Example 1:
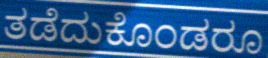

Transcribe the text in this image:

ತಡೆದುಕೊಂಡರೂ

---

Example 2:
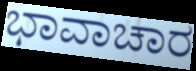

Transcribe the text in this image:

ಭಾವಾಚಾರ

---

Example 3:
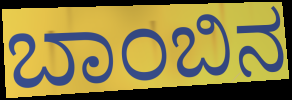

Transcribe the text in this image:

ಬಾಂಬಿನ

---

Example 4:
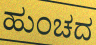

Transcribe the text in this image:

ಹುಂಚದ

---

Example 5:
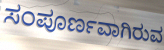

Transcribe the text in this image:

ಸಂಪೂರ್ಣವಾಗಿರುವ